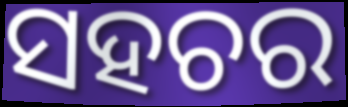
ସହଚର